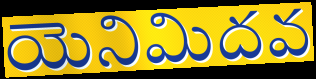
యెనిమిదవ